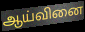
ஆய்வினை